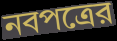
নবপত্রের